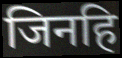
जिनहि